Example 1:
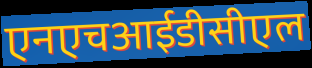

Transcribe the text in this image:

एनएचआईडीसीएल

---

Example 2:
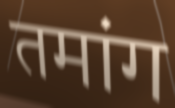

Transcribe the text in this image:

तमांग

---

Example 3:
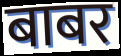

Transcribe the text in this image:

बाबर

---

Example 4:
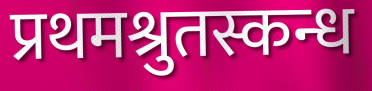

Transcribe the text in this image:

प्रथमश्रुतस्कन्ध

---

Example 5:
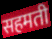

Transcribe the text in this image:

सहमती